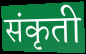
संकृती